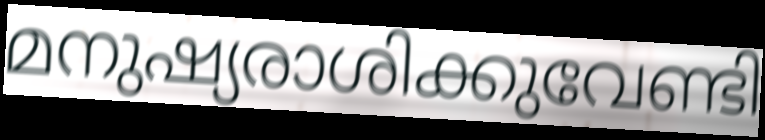
മനുഷ്യരാശിക്കുവേണ്ടി